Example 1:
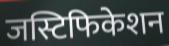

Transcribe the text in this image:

जस्टिफिकेशन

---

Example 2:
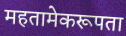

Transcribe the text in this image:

महतामेकरूपता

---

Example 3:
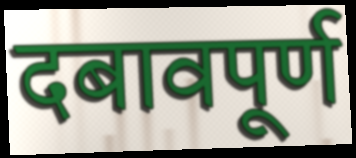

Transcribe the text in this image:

दबावपूर्ण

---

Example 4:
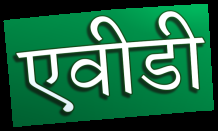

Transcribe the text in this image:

एवीडी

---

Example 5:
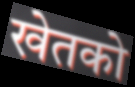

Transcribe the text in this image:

खेतको